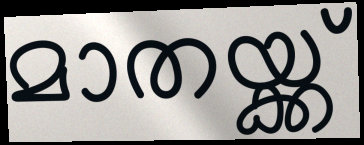
മാതയ്ക്ക്